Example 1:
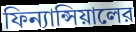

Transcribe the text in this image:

ফিন্যান্সিয়ালের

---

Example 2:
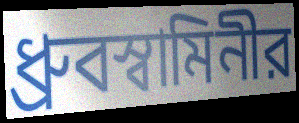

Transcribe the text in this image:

ধ্রুবস্বামিনীর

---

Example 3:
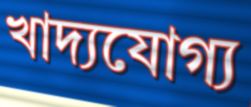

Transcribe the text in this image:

খাদ্যযোগ্য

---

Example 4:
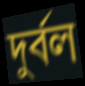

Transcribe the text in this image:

দুর্বল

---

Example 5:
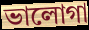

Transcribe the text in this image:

ভালোগা